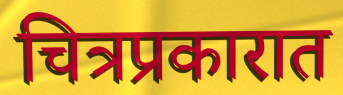
चित्रप्रकारात